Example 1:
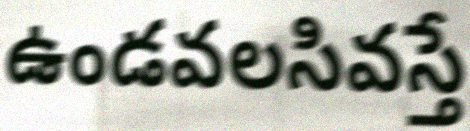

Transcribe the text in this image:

ఉండవలసివస్తే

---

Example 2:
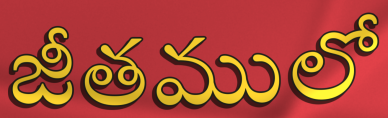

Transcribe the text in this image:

జీతములో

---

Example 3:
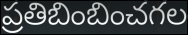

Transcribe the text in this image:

ప్రతిబింబించగల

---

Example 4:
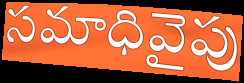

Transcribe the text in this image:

సమాధివైపు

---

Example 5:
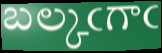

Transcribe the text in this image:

బల్కఁగాఁ